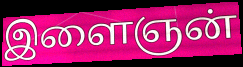
இளைஞன்